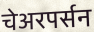
चेअरपर्सन